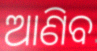
ଆଣିବ